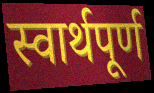
स्वार्थपूर्ण